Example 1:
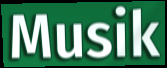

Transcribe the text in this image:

Musik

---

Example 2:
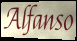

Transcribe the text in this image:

Alfanso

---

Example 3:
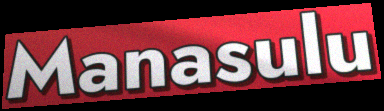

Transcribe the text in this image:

Manasulu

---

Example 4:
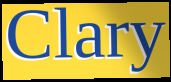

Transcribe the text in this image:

Clary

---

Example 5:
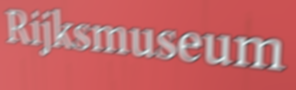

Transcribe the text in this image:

Rijksmuseum